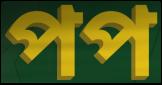
পপ